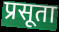
प्रसूता